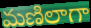
మణిలాగా